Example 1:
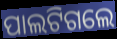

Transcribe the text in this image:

ପାଲଟିଗଲେ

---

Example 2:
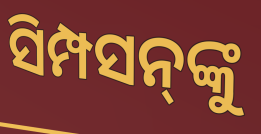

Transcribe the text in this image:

ସିମ୍ପସନ୍‍ଙ୍କୁ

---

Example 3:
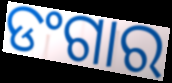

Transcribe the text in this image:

ଡଂଗାର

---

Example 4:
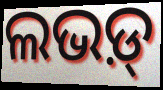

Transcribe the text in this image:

ଲଭଡ଼୍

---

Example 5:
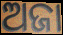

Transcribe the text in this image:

ଅଜା